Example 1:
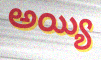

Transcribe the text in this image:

అయ్యి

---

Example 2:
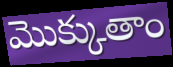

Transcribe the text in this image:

మొక్కుతాం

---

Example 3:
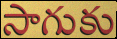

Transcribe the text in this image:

సాగుకు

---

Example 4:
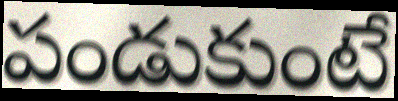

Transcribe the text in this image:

పండుకుంటే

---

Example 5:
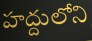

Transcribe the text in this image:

హద్దులోని